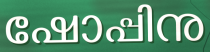
ഷോപ്പിനു